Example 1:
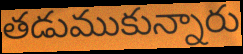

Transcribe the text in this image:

తడుముకున్నారు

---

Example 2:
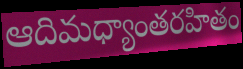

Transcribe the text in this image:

ఆదిమధ్యాంతరహితం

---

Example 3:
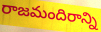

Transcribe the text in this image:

రాజమందిరాన్ని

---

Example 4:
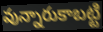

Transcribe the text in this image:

వున్నారుకాబట్టి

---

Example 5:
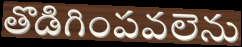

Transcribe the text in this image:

తొడిగింపవలెను